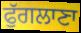
ਫੁੱਗਲਾਣਾ